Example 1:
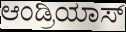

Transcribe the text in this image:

ಆಂಡ್ರಿಯಾಸ್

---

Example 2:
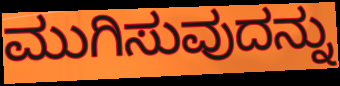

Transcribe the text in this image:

ಮುಗಿಸುವುದನ್ನು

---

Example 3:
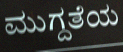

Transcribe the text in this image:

ಮುಗ್ದತೆಯ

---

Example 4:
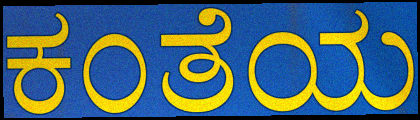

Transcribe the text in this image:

ಕಂತೆಯ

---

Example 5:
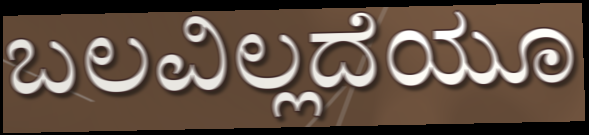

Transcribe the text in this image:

ಬಲವಿಲ್ಲದೆಯೂ